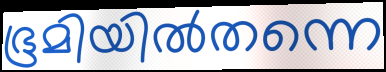
ഭൂമിയിൽതന്നെ